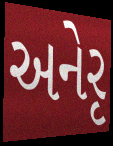
અનેરૃ